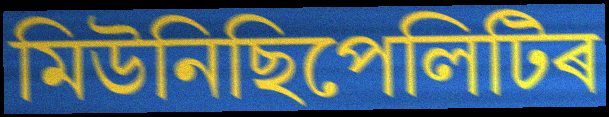
মিউনিছিপেলিটিৰ